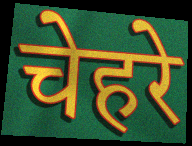
चेहरे